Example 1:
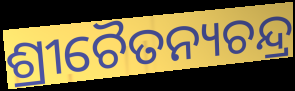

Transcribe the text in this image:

ଶ୍ରୀଚୈତନ୍ୟଚନ୍ଦ୍ର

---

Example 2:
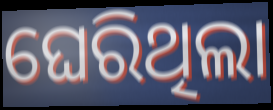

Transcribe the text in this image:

ଘେରିଥିଲା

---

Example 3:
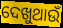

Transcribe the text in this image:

ଦେଖୁଥାଉଁ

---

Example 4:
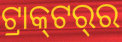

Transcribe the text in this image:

ଟ୍ରାକ୍‍ଟର୍‍ର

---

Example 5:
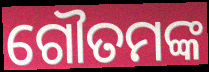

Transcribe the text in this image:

ଗୌତମଙ୍କ